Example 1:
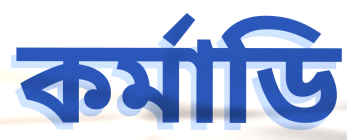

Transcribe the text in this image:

কর্মাডি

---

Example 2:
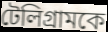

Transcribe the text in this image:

টেলিগ্রামকে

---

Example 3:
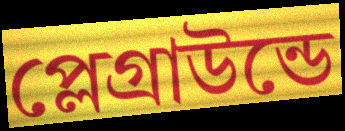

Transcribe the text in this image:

প্লেগ্রাউন্ডে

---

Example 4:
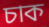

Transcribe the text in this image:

চাক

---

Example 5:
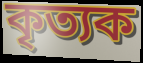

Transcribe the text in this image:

কৃত্যক